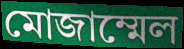
মোজাম্মেল